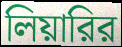
লিয়ারির